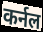
कर्नल